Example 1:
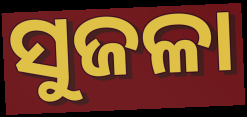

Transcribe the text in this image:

ସୁଜଳା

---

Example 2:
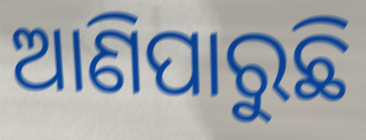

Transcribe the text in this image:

ଆଣିପାରୁଛି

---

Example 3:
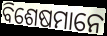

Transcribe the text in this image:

ବିଶେଷମାନେ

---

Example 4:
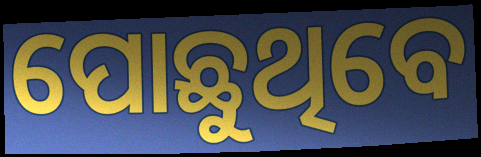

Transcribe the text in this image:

ପୋଛୁଥିବେ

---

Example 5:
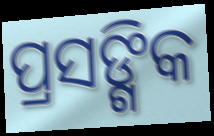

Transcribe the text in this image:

ପ୍ରସଙ୍ଗିକ